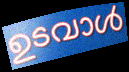
ഉടവാൾ